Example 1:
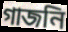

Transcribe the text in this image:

গাজনি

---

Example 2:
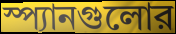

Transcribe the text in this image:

স্প্যানগুলোর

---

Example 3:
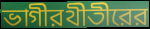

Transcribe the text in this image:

ভাগীরথীতীরের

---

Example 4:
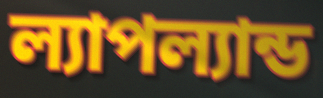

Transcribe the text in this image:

ল্যাপল্যান্ড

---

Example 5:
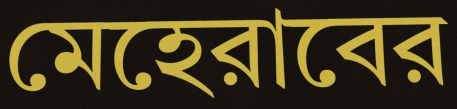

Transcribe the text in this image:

মেহেরাবের